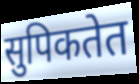
सुपिकतेत